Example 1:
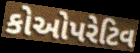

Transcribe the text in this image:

કોઓપરેટિવ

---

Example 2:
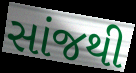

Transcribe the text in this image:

સાંજથી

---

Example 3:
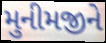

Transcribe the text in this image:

મુનીમજીને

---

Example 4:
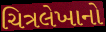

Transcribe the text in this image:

ચિત્રલેખાનો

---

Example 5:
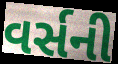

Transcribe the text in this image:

વર્સની